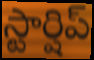
స్టార్షిప్